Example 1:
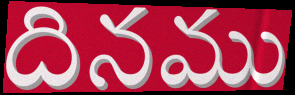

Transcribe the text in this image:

దినము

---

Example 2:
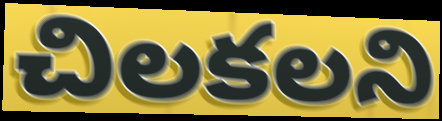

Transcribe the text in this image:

చిలకలని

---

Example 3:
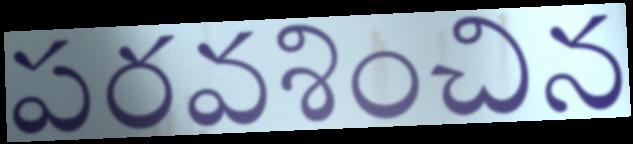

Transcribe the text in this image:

పరవశించిన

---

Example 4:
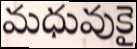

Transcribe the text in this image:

మధువుకై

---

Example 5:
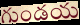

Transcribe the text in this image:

గుండయ